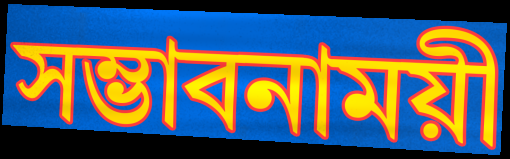
সম্ভাবনাময়ী